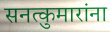
सनत्कुमारांना